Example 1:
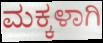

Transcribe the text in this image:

ಮಕ್ಕಳಾಗಿ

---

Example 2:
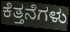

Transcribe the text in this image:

ಕೆತ್ತನೆಗಳು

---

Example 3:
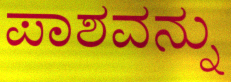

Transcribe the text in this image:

ಪಾಶವನ್ನು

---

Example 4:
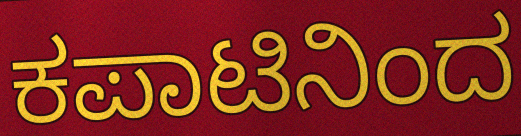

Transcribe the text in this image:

ಕಪಾಟಿನಿಂದ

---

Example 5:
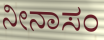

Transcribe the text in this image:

ನೀನಾಸಂ